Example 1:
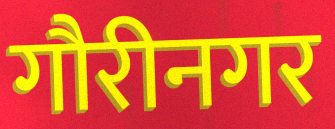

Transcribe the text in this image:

गौरीनगर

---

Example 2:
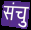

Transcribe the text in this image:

संचु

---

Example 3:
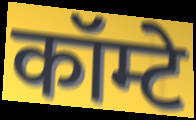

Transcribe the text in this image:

कॉम्टे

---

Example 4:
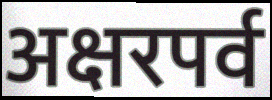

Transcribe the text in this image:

अक्षरपर्व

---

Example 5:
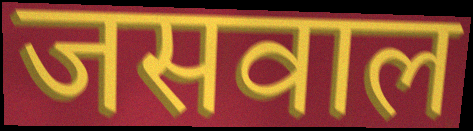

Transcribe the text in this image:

जसवाल